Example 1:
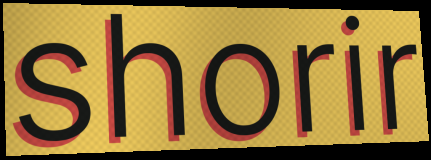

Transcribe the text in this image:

shorir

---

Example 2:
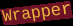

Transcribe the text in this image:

Wrapper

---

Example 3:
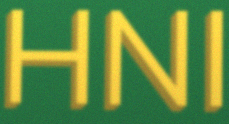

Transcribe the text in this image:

HNI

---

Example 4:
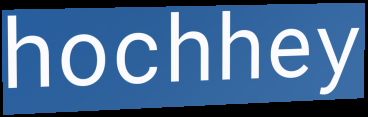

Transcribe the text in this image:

hochhey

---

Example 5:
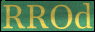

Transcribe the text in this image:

RROd